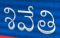
శివేతి